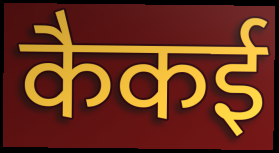
कैकई